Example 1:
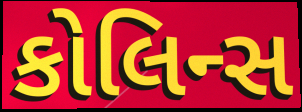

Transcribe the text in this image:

કોલિન્સ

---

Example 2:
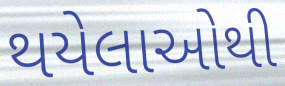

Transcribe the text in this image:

થયેલાઓથી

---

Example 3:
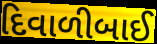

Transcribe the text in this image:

દિવાળીબાઈ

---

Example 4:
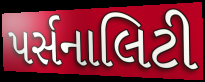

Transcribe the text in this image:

પર્સનાલિટી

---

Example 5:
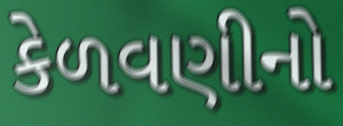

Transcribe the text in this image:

કેળવણીનો